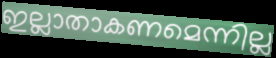
ഇല്ലാതാകണമെന്നില്ല